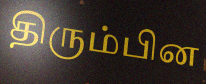
திரும்பின